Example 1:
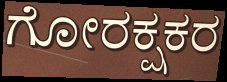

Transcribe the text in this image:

ಗೋರಕ್ಷಕರ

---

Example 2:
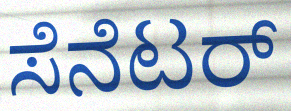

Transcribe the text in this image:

ಸೆನೆಟರ್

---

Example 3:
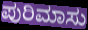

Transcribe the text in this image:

ಪುರಿಮಾಸು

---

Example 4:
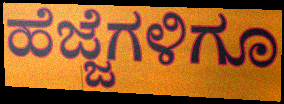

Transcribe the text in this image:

ಹೆಜ್ಜೆಗಳಿಗೂ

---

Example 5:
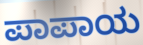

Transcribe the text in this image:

ಪಾಪಾಯ